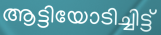
ആട്ടിയോടിച്ചിട്ട്